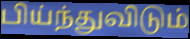
பிய்ந்துவிடும்